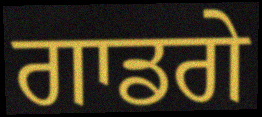
ਗਾਡਗੇ